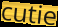
cutie